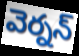
వెర్నన్